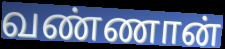
வண்ணான்